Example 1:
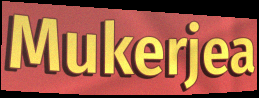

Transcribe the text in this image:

Mukerjea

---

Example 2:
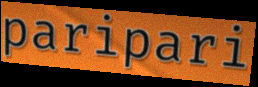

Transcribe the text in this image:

paripari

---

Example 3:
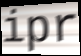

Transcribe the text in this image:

ipr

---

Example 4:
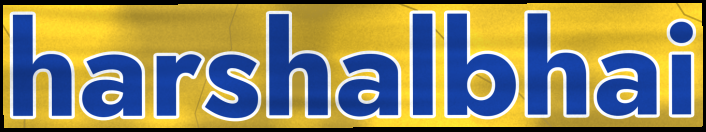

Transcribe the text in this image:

harshalbhai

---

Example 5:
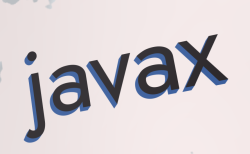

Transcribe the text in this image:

javax